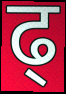
ढ्